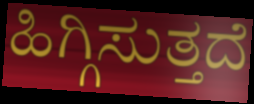
ಹಿಗ್ಗಿಸುತ್ತದೆ